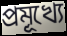
প্ৰমূখ্যে